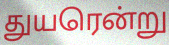
துயரென்று